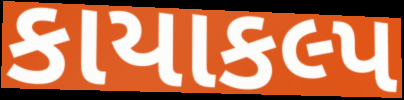
કાયાકલ્પ